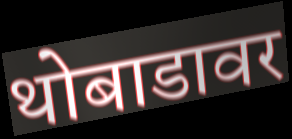
थोबाडावर